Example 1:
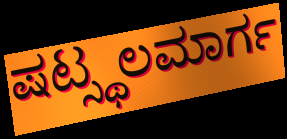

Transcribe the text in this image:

ಷಟ್ಸ್ಥಲಮಾರ್ಗ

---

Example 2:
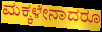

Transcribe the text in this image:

ಮಕ್ಕಳೇನಾದರೂ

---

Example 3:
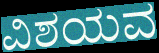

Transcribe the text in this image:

ವಿಶಯವ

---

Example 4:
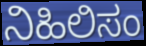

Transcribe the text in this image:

ನಿಹಿಲಿಸಂ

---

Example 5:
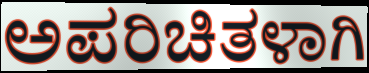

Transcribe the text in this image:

ಅಪರಿಚಿತಳಾಗಿ